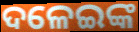
ଦଳେଇଙ୍କ